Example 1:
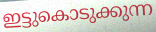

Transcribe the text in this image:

ഇട്ടുകൊടുക്കുന്ന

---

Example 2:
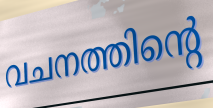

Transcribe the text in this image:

വചനത്തിന്റെ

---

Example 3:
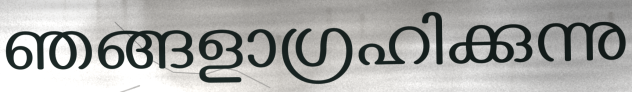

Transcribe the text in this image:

ഞങ്ങളാഗ്രഹിക്കുന്നു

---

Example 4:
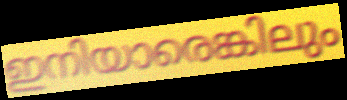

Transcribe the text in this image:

ഇനിയാരെങ്കിലും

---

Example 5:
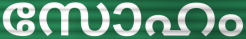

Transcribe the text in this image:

സോഹം